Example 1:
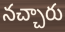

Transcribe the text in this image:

నచ్చారు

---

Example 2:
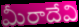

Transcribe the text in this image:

మీరాదేవి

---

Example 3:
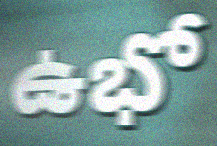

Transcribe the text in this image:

ఉభో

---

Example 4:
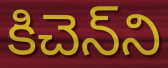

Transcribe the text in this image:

కిచెన్‌ని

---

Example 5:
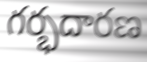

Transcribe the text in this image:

గర్భదారణ